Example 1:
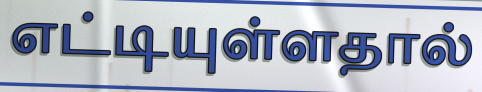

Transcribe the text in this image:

எட்டியுள்ளதால்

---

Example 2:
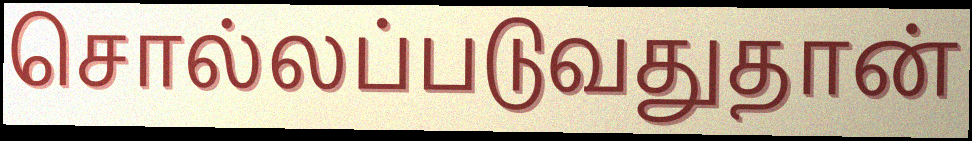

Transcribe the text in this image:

சொல்லப்படுவதுதான்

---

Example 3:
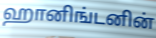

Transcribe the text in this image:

ஹானிங்டனின்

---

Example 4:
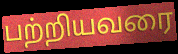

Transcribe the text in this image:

பற்றியவரை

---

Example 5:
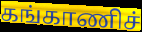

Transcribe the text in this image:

கங்காணிச்